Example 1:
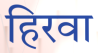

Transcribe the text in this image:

हिरवा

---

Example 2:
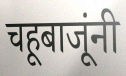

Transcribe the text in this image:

चहूबाजूंनी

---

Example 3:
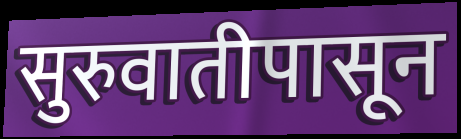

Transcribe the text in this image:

सुरुवातीपासून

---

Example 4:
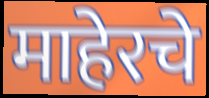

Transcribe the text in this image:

माहेरचे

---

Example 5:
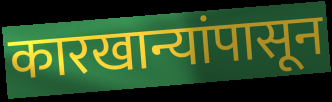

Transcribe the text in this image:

कारखान्यांपासून